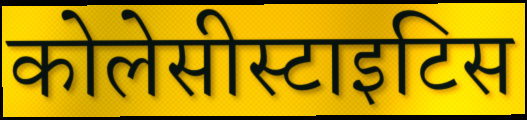
कोलेसीस्टाइटिस